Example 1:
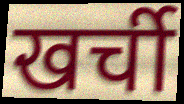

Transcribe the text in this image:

खर्ची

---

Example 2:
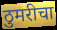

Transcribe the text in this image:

ठुमरीचा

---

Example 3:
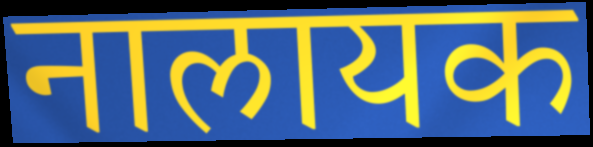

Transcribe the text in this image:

नालायक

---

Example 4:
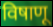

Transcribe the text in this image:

विषाणू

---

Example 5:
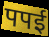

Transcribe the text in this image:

पपई